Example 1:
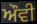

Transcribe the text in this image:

ਔਵੀ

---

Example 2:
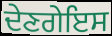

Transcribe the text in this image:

ਦੇਣਗੇਇਸ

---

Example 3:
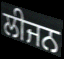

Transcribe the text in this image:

ਲੀਜਨ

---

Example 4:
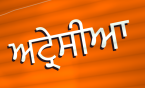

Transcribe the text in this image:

ਅਟ੍ਰੇਸੀਆ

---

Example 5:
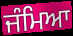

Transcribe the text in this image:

ਜੰਮਿਆ